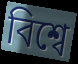
বিশ্বে